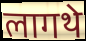
लागथे